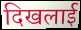
दिखलाई